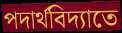
পদার্থবিদ্যাতে